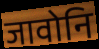
जावोनि